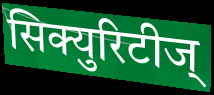
सिक्युरिटीज्